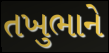
તખુભાને